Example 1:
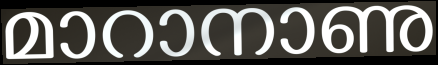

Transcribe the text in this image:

മാറാനാണു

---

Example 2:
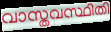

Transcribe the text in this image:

വാസ്തവസ്ഥിതി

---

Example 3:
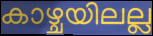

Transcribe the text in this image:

കാഴ്ചയിലല്ല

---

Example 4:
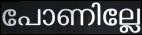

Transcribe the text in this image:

പോണില്ലേ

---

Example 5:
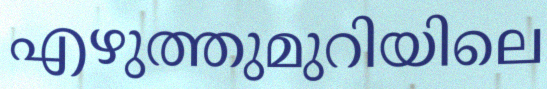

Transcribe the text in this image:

എഴുത്തുമുറിയിലെ